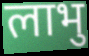
लाभु